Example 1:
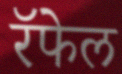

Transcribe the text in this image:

रॅफेल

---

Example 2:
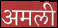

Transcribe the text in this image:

अमली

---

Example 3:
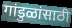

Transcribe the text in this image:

गांडुळांसाठी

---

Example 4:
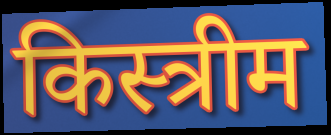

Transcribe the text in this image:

किस्त्रीम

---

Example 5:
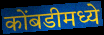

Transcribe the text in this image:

कोंबडीमध्ये